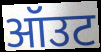
ऑउट